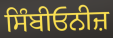
ਸਿੰਬੀਓਨੀਜ਼